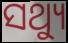
ସଥ୍ୟୁ